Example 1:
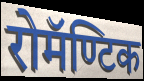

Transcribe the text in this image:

रोमॅण्टिक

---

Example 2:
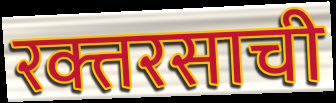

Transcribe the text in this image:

रक्तरसाची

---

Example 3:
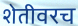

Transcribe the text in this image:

शेतीवरच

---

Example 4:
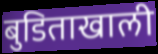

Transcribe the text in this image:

बुडिताखाली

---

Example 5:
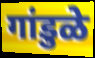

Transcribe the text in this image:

गांडुळे